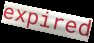
expired